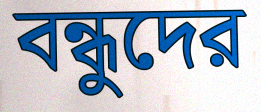
বন্ধুদের